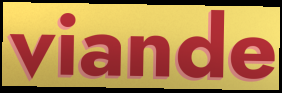
viande